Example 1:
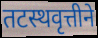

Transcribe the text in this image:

तटस्थवृत्तीने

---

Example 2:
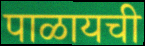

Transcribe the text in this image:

पाळायची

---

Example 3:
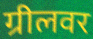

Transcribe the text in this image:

ग्रीलवर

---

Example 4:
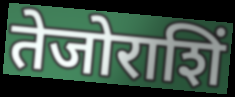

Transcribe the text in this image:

तेजोराशिं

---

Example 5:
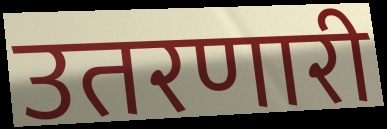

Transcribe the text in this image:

उतरणारी